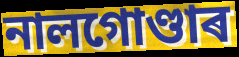
নালগোণ্ডাৰ